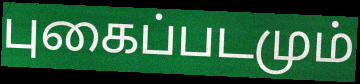
புகைப்படமும்